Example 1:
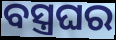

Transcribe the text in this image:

ବସ୍ତ୍ରଘର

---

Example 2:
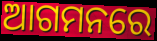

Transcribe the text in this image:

ଆଗମନରେ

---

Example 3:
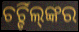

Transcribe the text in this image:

ଚର୍ଚ୍ଚିଲ୍‌ଙ୍କର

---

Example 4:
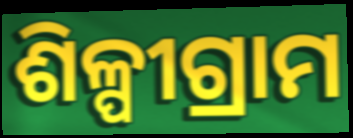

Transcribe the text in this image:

ଶିଳ୍ପୀଗ୍ରାମ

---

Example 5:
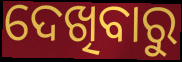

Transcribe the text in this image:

ଦେଖିବାରୁ